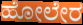
ಹೋಲೇರ